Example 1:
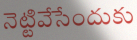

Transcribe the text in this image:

నెట్టివేసేందుకు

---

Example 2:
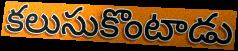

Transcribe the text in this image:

కలుసుకొంటాడు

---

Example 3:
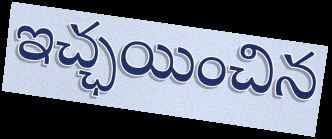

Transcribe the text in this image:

ఇచ్ఛయించిన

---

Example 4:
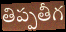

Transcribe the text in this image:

తిప్పతీగ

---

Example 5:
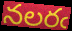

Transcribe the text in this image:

నలరఁ